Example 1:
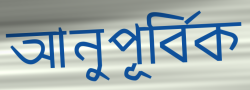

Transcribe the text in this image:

আনুপূর্বিক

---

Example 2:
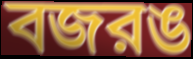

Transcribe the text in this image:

বজরঙ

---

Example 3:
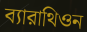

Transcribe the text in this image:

ব্যারাথিওন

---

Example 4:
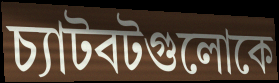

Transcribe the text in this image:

চ্যাটবটগুলোকে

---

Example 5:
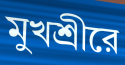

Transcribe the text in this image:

মুখশ্রীরে